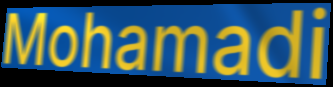
Mohamadi